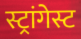
स्ट्रांगेस्ट